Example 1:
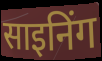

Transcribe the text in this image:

साइनिंग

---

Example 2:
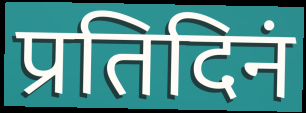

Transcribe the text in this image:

प्रतिदिनं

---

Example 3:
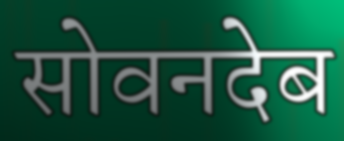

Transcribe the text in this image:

सोवनदेब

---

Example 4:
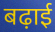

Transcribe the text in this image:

बढ़ाई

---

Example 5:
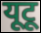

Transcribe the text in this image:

यूटू